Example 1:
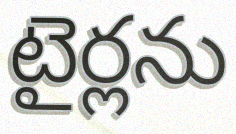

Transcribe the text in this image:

టైర్లను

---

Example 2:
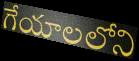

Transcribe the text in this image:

గేయాలలోని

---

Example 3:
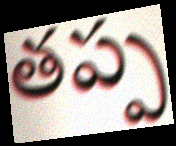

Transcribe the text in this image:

తప్ప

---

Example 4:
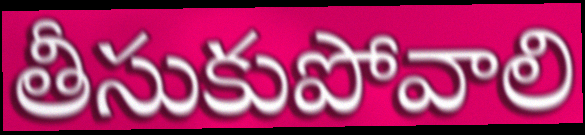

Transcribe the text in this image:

తీసుకుపోవాలి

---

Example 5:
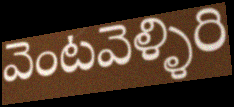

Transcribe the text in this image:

వెంటవెళ్ళిరి